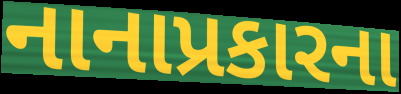
નાનાપ્રકારના